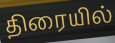
திரையில்